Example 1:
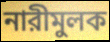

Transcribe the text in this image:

নারীমুলক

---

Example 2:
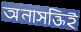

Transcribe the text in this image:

অনাসক্তিই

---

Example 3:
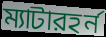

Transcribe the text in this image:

ম্যাটারহর্ন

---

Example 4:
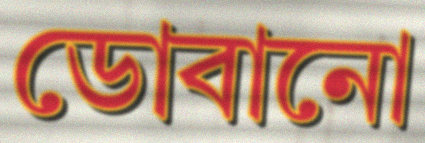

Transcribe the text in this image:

ডোবানো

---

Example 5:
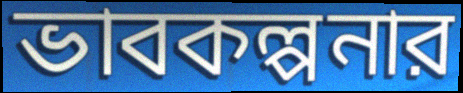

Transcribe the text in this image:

ভাবকল্পনার